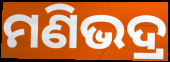
ମଣିଭଦ୍ର